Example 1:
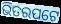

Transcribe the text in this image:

ଭିତରପଟେ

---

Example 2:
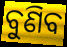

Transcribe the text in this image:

ବୁଣିବ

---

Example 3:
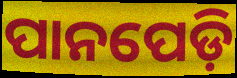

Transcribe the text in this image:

ପାନପେଡ଼ି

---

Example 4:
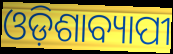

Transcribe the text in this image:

ଓଡ଼ିଶାବ୍ୟାପୀ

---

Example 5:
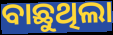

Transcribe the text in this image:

ବାଛୁଥିଲା